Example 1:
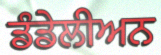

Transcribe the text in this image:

ਡੰਡੇਲੀਅਨ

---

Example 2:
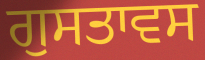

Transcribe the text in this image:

ਗੁਸਤਾਵਸ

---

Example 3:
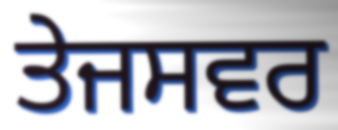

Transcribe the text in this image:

ਤੇਜਸਵਰ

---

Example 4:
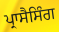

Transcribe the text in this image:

ਪ੍ਰਾਸੈਸਿੰਗ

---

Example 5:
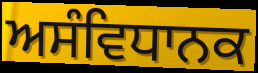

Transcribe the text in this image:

ਅਸੰਵਿਧਾਨਕ